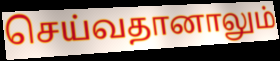
செய்வதானாலும்